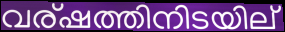
വര്ഷത്തിനിടയില്